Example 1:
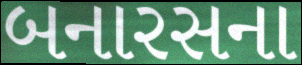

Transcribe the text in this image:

બનારસના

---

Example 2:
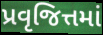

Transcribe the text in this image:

પ્રવૃજિત્તમાં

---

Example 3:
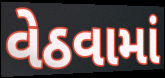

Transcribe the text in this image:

વેઠવામાં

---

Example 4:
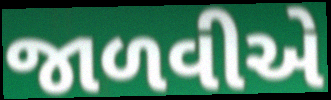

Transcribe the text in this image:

જાળવીએ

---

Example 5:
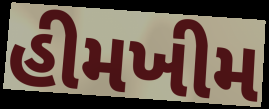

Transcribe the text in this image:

હીમખીમ